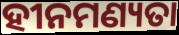
ହୀନମଣ୍ୟତା